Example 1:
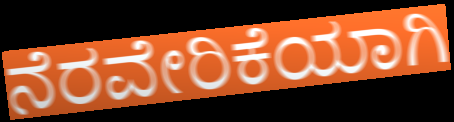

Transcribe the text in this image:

ನೆರವೇರಿಕೆಯಾಗಿ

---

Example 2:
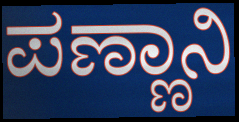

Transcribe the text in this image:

ಪಣ್ಣಾನಿ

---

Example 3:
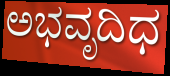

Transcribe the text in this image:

ಅಭವೃದಿಧ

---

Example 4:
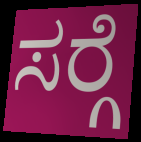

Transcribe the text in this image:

ಸರ್‍ಗೆ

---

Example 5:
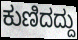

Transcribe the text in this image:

ಕುಣಿದದ್ದು